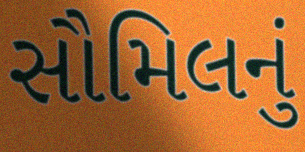
સૌમિલનું